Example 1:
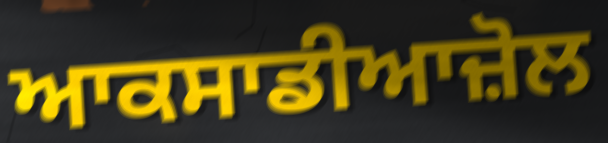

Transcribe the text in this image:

ਆਕਸਾਡੀਆਜ਼ੋਲ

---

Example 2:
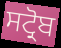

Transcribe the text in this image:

ਸਟ੍ਰੋਬ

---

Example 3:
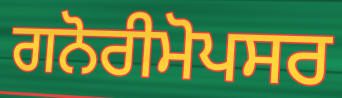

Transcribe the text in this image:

ਗਨੋਰੀਮੋਪਸਰ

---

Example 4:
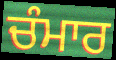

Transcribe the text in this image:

ਚੰਮਾਰ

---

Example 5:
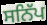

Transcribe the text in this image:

ਸਨਿੱਪ